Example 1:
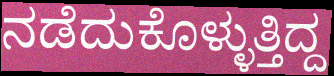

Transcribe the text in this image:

ನಡೆದುಕೊಳ್ಳುತ್ತಿದ್ದ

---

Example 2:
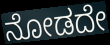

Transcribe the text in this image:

ನೋಡದೇ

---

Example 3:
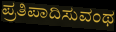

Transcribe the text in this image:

ಪ್ರತಿಪಾದಿಸುವಂಥ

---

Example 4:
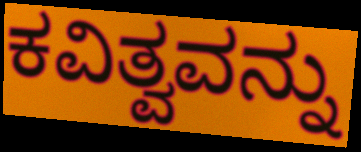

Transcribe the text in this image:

ಕವಿತ್ವವನ್ನು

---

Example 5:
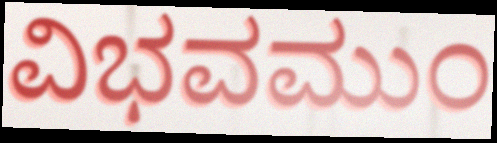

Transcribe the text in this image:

ವಿಭವಮುಂ